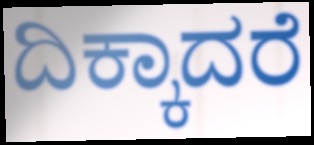
ದಿಕ್ಕಾದರೆ